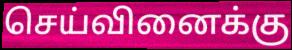
செய்வினைக்கு